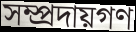
সম্প্রদায়গণ